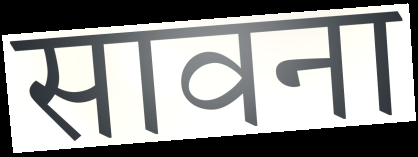
सावना